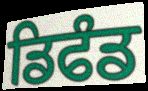
ਡਿਫੰਡ